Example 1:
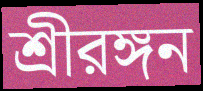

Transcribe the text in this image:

শ্রীরঙ্গন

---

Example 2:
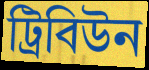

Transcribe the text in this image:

ট্রিবিউন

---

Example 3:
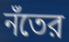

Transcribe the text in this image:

নঁতের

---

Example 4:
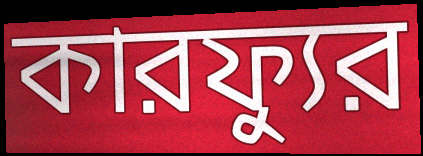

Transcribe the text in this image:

কারফ্যুর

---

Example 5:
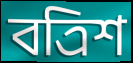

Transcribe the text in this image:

বত্রিশ